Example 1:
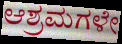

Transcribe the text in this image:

ಆಶ್ರಮಗಳೇ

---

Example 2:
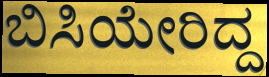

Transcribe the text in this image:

ಬಿಸಿಯೇರಿದ್ದ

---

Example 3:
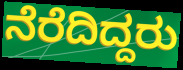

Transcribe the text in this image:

ನೆರೆದಿದ್ದರು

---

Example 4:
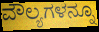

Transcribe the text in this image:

ವೌಲ್ಯಗಳನ್ನೂ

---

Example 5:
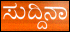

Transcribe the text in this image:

ಸುದ್ದಿನಾ